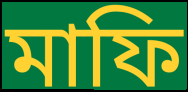
মাফি